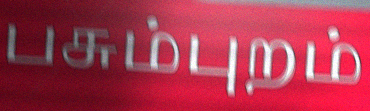
பசும்புறம்